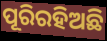
ପୂରିରହିଅଛି